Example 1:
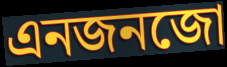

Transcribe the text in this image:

এনজনজো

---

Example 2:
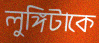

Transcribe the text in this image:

লুঙ্গিটাকে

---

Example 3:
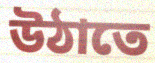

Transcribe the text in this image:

উঠাতে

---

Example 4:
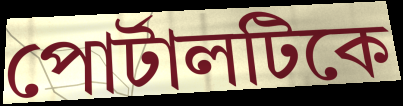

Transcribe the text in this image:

পোর্টালটিকে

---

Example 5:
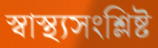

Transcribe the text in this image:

স্বাস্থ্যসংশ্লিষ্ট